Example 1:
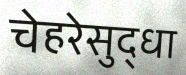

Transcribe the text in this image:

चेहरेसुद्धा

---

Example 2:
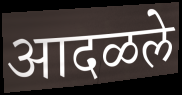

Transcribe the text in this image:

आदळले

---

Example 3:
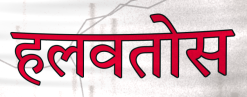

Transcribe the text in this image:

हलवतोस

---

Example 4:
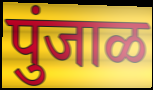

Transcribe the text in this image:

पुंजाळ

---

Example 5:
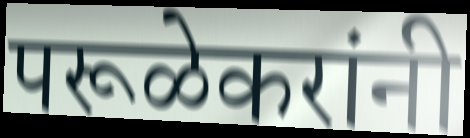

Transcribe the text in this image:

परूळेकरांनी